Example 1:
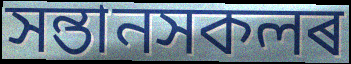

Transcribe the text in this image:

সন্তানসকলৰ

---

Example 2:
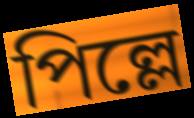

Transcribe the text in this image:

পিল্লে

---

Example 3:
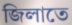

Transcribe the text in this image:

জিলাতে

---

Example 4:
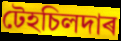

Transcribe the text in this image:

টেহচিলদাৰ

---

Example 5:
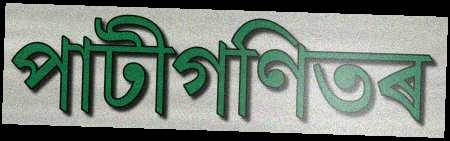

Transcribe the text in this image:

পাটীগণিতৰ